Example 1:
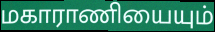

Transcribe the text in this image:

மகாராணியையும்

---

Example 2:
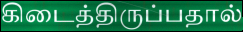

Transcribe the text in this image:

கிடைத்திருப்பதால்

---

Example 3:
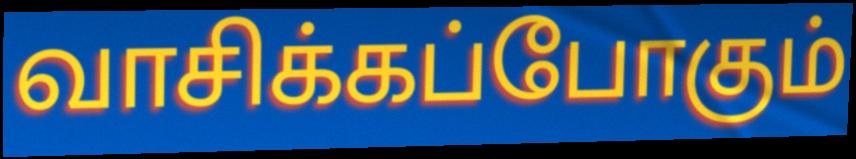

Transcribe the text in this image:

வாசிக்கப்போகும்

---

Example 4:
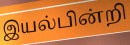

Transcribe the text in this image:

இயல்பின்றி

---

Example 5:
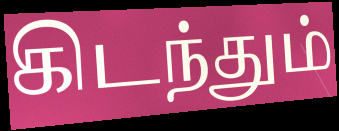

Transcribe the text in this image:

கிடந்தும்